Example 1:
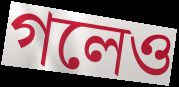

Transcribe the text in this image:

গলেও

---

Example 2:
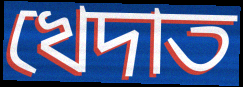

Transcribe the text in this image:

খেদাত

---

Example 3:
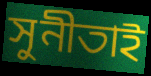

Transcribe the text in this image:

সুনীতাই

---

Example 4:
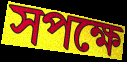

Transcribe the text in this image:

সপক্ষে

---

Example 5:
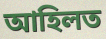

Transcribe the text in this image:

আহিলত